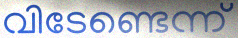
വിടേണ്ടെന്ന്